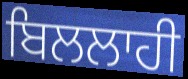
ਬਿਲਲਾਹੀ